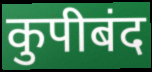
कुपीबंद